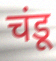
चंडू